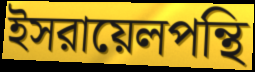
ইসরায়েলপন্থি